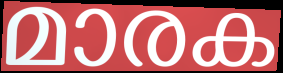
മാരക